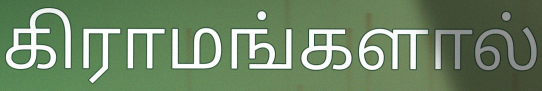
கிராமங்களால்